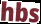
hbs